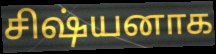
சிஷ்யனாக